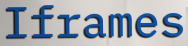
Iframes